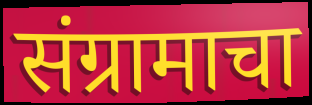
संग्रामाचा